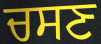
ਚਸਣ